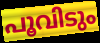
പൂവിടും